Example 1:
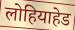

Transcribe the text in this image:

लोहियाहेड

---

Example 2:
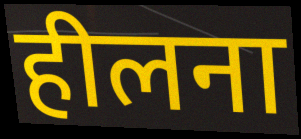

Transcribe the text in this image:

हीलना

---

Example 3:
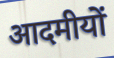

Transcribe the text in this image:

आदमीयों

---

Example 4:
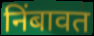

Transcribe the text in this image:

निंबावत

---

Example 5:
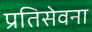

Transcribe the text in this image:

प्रतिसेवना